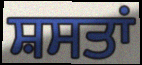
ਸ਼ਸਤਾਂ